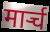
मार्र्च